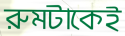
রুমটাকেই